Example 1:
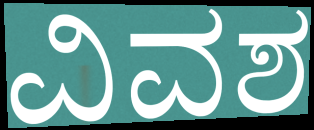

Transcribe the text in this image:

ವಿವಶ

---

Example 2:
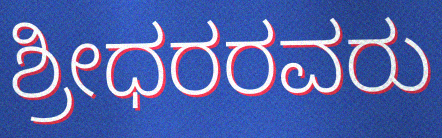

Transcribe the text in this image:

ಶ್ರೀಧರರವರು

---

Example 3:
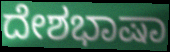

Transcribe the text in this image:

ದೇಶಭಾಷಾ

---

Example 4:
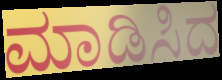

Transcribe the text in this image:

ಮಾಡಿಸಿದ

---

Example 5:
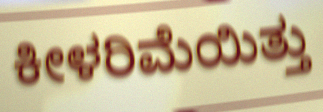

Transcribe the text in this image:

ಕೀಳರಿಮೆಯಿತ್ತು